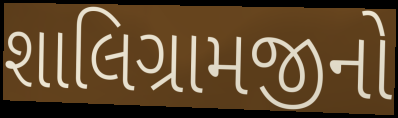
શાલિગ્રામજીનો